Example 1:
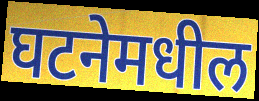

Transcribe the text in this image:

घटनेमधील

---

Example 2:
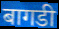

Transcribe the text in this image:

बागडी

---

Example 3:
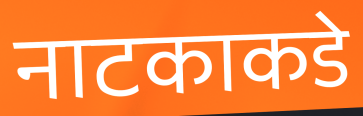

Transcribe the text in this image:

नाटकाकडे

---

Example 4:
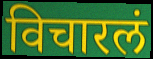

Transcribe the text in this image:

विचारलं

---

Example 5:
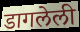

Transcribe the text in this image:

डागलेली